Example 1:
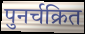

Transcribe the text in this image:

पुनर्चक्रित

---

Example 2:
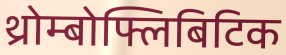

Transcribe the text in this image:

थ्रोम्बोफ्लिबिटिक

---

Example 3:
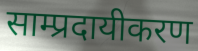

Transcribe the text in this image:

साम्प्रदायीकरण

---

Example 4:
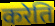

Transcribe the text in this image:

करेति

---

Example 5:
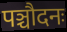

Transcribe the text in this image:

पञ्चौदनः